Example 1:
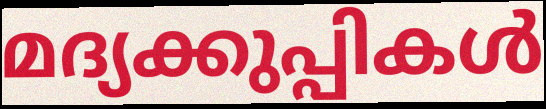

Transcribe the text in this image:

മദ്യക്കുപ്പികൾ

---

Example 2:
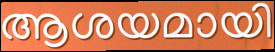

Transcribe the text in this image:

ആശയമായി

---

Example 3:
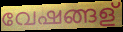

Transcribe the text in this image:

വേഷങ്ങള്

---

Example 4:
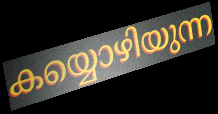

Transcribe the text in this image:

കയ്യൊഴിയുന്ന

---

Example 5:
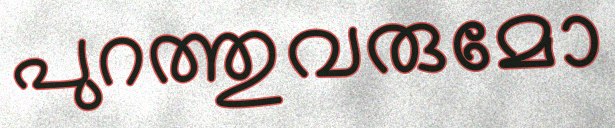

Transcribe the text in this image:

പുറത്തുവരുമോ